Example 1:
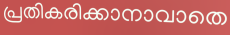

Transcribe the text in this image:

പ്രതികരിക്കാനാവാതെ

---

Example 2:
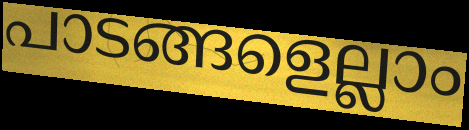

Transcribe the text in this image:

പാടങ്ങളെല്ലാം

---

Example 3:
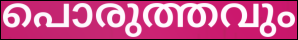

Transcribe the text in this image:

പൊരുത്തവും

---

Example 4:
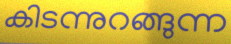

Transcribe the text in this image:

കിടന്നുറങ്ങുന്ന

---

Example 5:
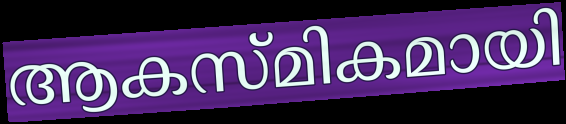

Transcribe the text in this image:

ആകസ്മികമായി